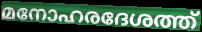
മനോഹരദേശത്ത്